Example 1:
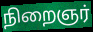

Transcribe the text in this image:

நிறைஞர்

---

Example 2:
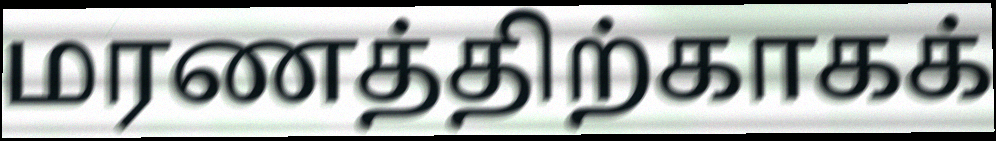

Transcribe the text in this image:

மரணத்திற்காகக்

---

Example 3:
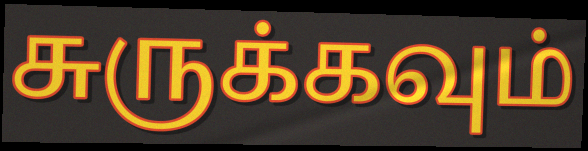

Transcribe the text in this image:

சுருக்கவும்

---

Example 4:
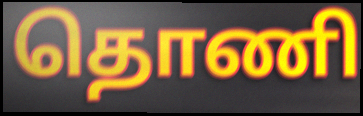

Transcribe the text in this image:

தொணி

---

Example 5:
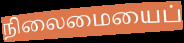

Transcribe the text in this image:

நிலைமையைப்